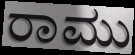
ರಾಮು